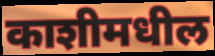
काशीमधील